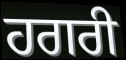
ਹਗਰੀ